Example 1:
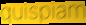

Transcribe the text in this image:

quispiam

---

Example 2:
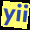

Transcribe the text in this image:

yii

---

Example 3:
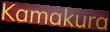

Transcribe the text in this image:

Kamakura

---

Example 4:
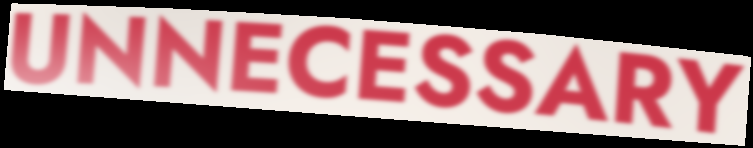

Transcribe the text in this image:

UNNECESSARY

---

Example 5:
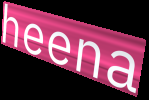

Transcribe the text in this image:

heena